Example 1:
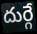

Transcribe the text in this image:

దుర్గే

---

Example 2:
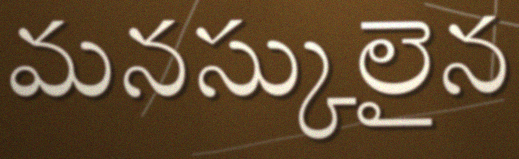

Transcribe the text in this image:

మనస్కులైన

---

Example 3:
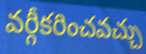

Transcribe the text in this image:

వర్గీకరించవచ్చు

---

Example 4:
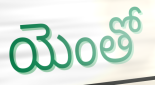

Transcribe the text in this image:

యెంతో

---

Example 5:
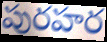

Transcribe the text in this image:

పురహర